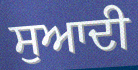
ਸੁਆਦੀ